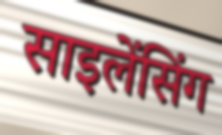
साइलेंसिंग